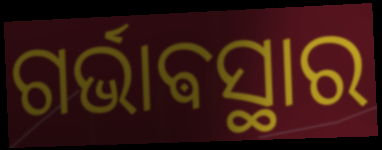
ଗର୍ଭାଵସ୍ଥାର